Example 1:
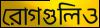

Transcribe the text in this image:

রোগগুলিও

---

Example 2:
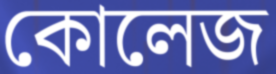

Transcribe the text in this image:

কোলেজ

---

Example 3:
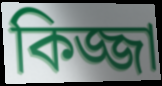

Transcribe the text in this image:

কিজ্জা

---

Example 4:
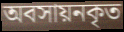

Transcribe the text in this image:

অবসায়নকৃত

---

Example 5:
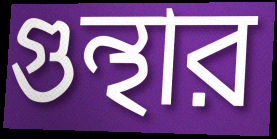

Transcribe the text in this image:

গুন্থার